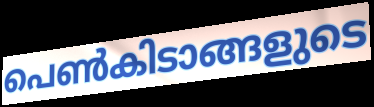
പെൺകിടാങ്ങളുടെ